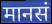
मानसं